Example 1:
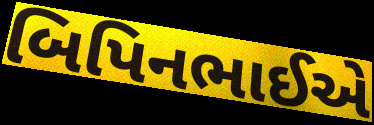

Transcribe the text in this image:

બિપિનભાઈએ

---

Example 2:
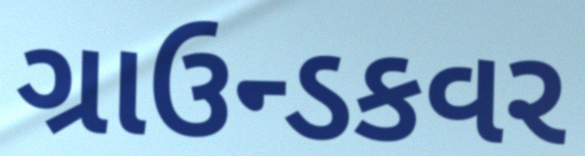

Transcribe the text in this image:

ગ્રાઉન્ડકવર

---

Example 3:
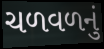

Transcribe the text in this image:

ચળવળનું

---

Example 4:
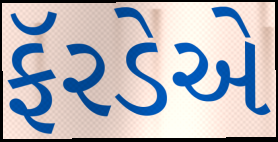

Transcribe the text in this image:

ફૅરડેએ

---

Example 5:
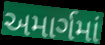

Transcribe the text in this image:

અમાર્ગમાં